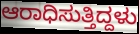
ಆರಾಧಿಸುತ್ತಿದ್ದಳು